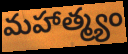
మహాత్మ్యం